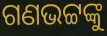
ଗଣଭଟ୍ଟଙ୍କୁ